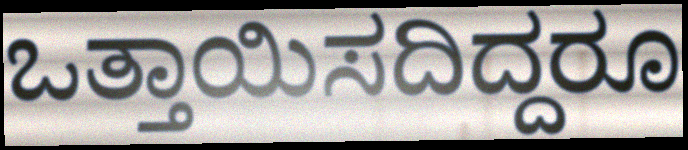
ಒತ್ತಾಯಿಸದಿದ್ದರೂ